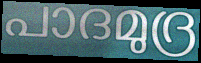
പാദമുദ്ര